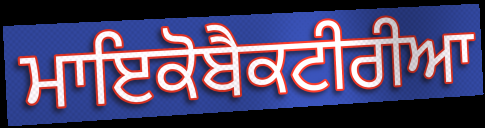
ਮਾਇਕੋਬੈਕਟੀਰੀਆ